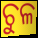
ଚୁଳ